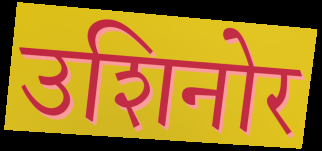
उशिनोर